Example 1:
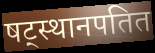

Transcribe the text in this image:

षट्स्थानपतित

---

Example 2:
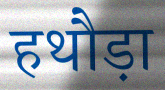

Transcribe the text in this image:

हथौड़ा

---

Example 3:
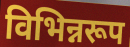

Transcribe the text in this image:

विभिन्नरूप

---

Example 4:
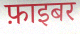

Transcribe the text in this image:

फ़ाइबर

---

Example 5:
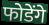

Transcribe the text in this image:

फोडेंगे